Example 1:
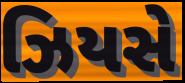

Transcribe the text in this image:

ઝિયસે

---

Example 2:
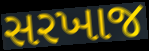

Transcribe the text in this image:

સરખાજ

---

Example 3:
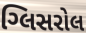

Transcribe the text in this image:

ગ્લિસરોલ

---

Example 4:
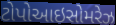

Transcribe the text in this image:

ટોપોઆઇસોમરેઝ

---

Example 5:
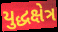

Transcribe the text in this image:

યુદ્ધક્ષેત્ર